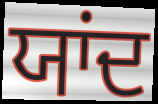
ਯਾਂਦ